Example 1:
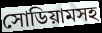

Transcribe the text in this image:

সোডিয়ামসহ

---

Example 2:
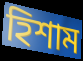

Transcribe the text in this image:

হিশাম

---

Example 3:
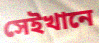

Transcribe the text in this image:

সেইখানে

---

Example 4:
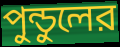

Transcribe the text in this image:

পুন্ডুলের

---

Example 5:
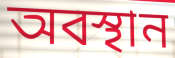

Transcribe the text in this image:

অবস্থান